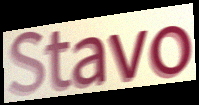
Stavo